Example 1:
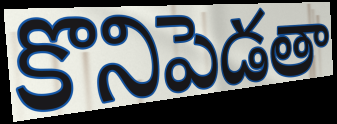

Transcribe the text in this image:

కొనిపెడతా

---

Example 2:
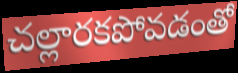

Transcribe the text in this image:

చల్లారకపోవడంతో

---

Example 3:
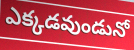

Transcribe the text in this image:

ఎక్కడవుండునో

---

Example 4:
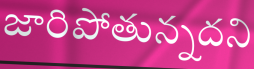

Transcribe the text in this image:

జారిపోతున్నదని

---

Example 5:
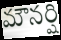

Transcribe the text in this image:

మౌనర్షి